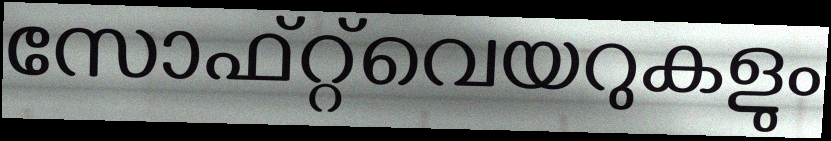
സോഫ്റ്റ്‌വെയറുകളും